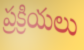
ప్రక్రియలు